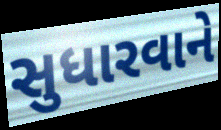
સુધારવાને